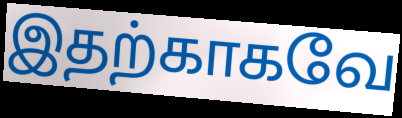
இதற்காகவே